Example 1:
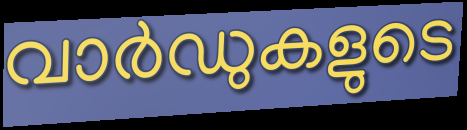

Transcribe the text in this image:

വാർഡുകളുടെ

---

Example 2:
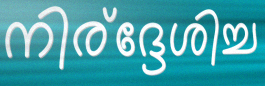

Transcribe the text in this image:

നിര്ദ്ദേശിച്ച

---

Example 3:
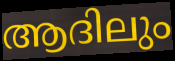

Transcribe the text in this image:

ആദിലും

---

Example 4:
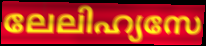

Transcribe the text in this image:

ലേലിഹ്യസേ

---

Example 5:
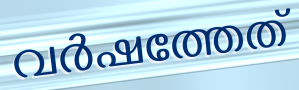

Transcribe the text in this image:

വർഷത്തേത്